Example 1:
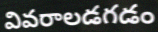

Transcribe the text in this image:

వివరాలడగడం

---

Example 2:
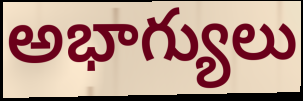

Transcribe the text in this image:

అభాగ్యులు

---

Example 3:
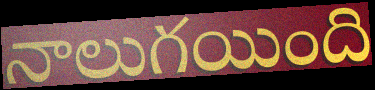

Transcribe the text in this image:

నాలుగయింది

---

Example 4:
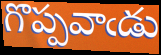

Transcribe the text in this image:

గొప్పవాఁడు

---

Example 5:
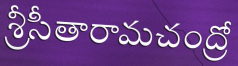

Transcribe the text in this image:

శ్రీసీతారామచంద్రో